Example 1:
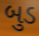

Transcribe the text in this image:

બુડ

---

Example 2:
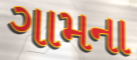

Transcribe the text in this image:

ગામના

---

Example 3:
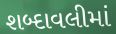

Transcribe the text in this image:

શબ્દાવલીમાં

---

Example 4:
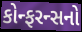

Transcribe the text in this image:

કોન્ફરન્સનો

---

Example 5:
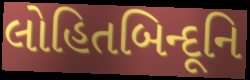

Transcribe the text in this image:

લોહિતબિન્દૂનિ